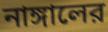
নাঙ্গালের